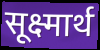
सूक्ष्मार्थ